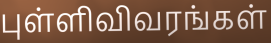
புள்ளிவிவரங்கள்